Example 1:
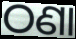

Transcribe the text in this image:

ଠଣା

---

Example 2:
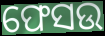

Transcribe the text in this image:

ଫେସଉ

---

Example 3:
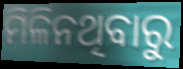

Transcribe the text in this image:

ମିଳିନଥିବାରୁ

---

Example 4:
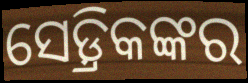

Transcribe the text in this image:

ସେଡ଼୍ରିକଙ୍କର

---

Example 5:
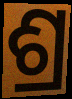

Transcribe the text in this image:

ଶ୍ର